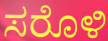
ಸರೊಳಿ